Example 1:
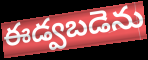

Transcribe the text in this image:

ఈడ్వబడెను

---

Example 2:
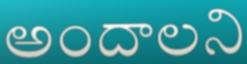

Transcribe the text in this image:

అందాలని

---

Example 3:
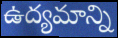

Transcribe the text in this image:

ఉద్యమాన్ని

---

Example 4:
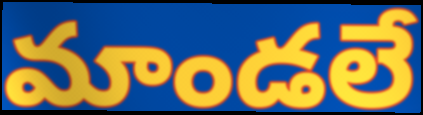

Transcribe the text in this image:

మాండలే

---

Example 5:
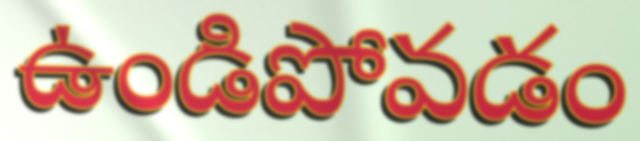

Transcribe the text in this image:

ఉండిపోవడం